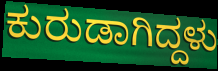
ಕುರುಡಾಗಿದ್ದಳು